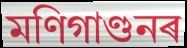
মণিগাণ্ডনৰ